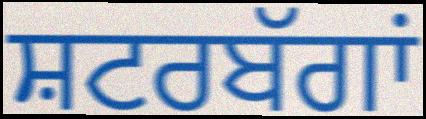
ਸ਼ਟਰਬੱਗਾਂ